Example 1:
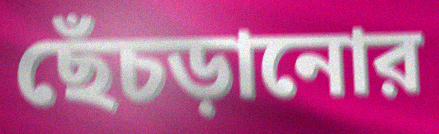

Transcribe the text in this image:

ছেঁচড়ানোর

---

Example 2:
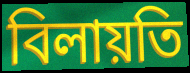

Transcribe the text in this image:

বিলায়তি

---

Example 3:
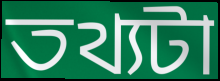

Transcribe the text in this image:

তথ্যটা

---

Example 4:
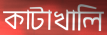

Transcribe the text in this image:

কাটাখালি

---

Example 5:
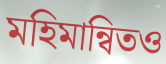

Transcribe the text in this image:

মহিমান্বিতও